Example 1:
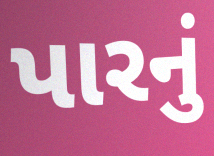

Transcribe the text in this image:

પારનું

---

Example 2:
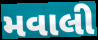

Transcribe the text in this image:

મવાલી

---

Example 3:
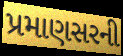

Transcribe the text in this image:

પ્રમાણસરની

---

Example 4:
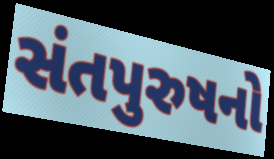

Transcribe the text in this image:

સંતપુરુષનો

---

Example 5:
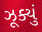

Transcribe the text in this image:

ઝૂક્યું